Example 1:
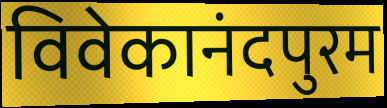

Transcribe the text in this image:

विवेकानंदपुरम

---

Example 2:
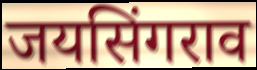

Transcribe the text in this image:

जयसिंगराव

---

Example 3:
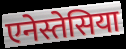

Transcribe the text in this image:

एनेस्तेसिया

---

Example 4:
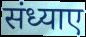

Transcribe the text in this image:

संध्याए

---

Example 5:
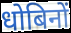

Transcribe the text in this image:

धोबिनों